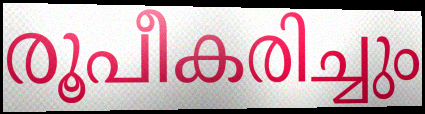
രൂപീകരിച്ചും